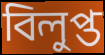
বিলুপ্ত